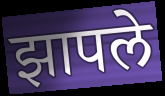
झापले